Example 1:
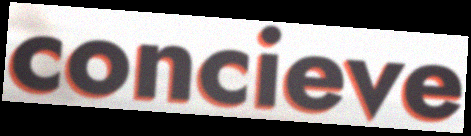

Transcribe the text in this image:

concieve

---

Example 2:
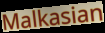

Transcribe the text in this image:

Malkasian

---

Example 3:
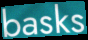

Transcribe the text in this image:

basks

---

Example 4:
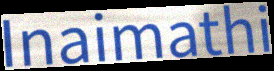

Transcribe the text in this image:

Inaimathi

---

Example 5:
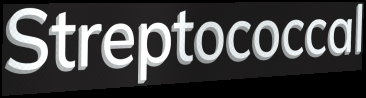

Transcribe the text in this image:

Streptococcal